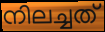
നിലച്ചത്